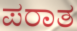
ಪರಾತ